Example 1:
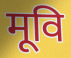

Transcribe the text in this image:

मूवि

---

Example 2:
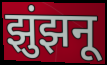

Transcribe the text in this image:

झुंझनू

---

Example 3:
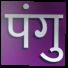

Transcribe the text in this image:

पंगु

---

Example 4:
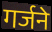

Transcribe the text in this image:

गर्जने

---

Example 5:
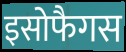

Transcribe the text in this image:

इसोफैगस